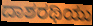
ದಾಶರಥಿಯು